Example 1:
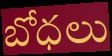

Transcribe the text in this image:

బోధలు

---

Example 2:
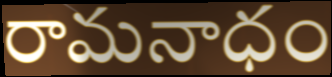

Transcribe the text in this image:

రామనాధం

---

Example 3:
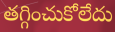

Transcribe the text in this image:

తగ్గించుకోలేదు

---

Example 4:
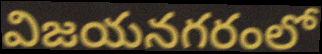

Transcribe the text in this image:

విజయనగరంలో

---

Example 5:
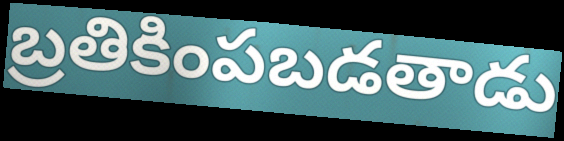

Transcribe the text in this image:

బ్రతికింపబడతాడు